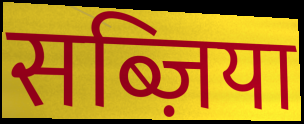
सब्ज़िया